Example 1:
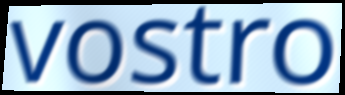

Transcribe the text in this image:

vostro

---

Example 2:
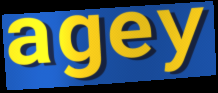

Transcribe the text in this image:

agey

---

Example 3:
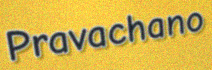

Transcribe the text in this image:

Pravachano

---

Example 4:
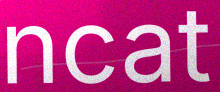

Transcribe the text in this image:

ncat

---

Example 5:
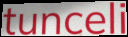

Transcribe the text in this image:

tunceli